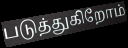
படுத்துகிறோம்